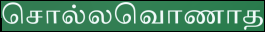
சொல்லவொணாத